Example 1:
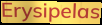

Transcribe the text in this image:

Erysipelas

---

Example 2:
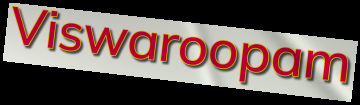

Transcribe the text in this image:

Viswaroopam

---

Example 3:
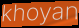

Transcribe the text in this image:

khoyan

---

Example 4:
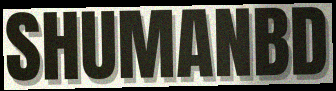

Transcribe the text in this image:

SHUMANBD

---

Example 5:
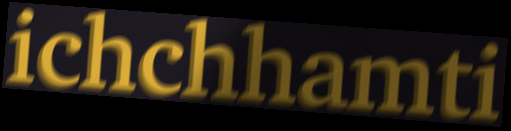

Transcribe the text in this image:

ichchhamti